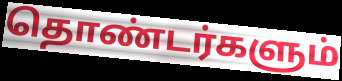
தொண்டர்களும்